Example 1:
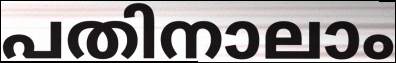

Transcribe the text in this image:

പതിനാലാം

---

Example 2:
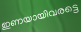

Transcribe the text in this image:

ഇണയായിവരട്ടെ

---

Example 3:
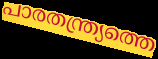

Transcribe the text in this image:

പാരതന്ത്ര്യത്തെ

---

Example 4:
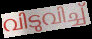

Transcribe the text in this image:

വിടുവിച്ച്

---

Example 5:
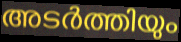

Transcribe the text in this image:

അടർത്തിയും